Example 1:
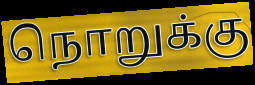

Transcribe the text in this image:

நொறுக்கு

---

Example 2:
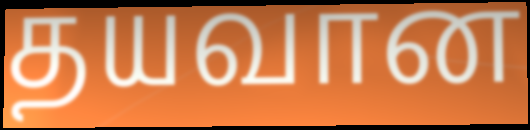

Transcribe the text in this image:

தயவான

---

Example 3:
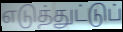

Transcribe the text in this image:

எடுத்துட்டுப்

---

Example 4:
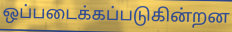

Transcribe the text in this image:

ஒப்படைக்கப்படுகின்றன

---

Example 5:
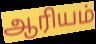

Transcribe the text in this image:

ஆரியம்